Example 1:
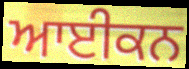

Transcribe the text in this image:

ਆਈਕਨ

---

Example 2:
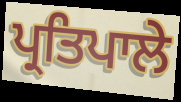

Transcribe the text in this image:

ਪ੍ਰਤਿਪਾਲੇ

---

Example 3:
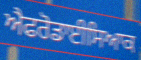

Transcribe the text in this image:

ਐਫਰੋਡਾਈਸਿਆਕ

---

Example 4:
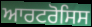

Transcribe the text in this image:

ਆਰਟਰੋਸਿਸ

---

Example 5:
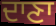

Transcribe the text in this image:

ਦਾਣਾ